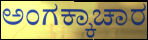
ಅಂಗಕ್ಕಾಚಾರ